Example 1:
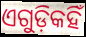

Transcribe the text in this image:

ଏଗୁଡ଼ିକହିଁ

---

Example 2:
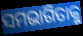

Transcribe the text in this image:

ସମଭାଗିତାକୁ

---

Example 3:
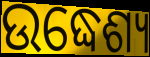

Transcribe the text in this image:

ଉଦ୍ଧେଶ୍ୟ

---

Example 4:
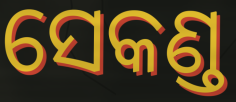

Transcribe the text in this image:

ସେକଣ୍ଡ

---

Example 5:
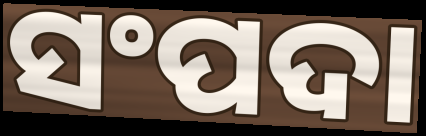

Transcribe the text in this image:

ସଂପଦା